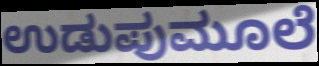
ಉಡುಪುಮೂಲೆ